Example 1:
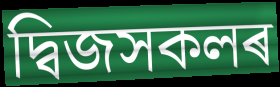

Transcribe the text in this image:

দ্বিজসকলৰ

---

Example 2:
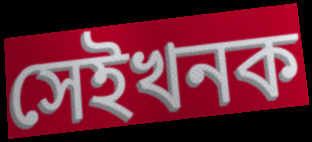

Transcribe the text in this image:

সেইখনক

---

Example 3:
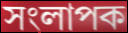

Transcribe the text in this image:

সংলাপক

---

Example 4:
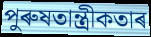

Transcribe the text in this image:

পুৰুষতান্ত্ৰীকতাৰ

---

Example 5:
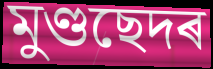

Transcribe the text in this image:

মুণ্ডছেদৰ